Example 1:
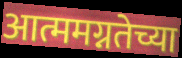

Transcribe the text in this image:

आत्ममग्नतेच्या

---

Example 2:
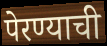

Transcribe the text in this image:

पेरण्याची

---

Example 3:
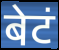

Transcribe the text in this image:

बेटं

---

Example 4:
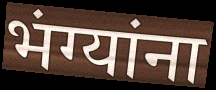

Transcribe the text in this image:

भंग्यांना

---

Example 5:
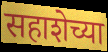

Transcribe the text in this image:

सहाशेच्या